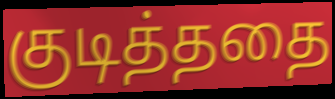
குடித்ததை